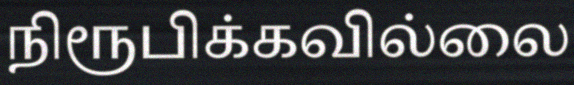
நிரூபிக்கவில்லை